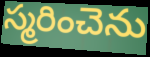
స్మరించెను